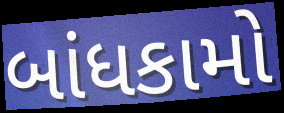
બાંધકામો